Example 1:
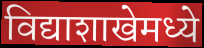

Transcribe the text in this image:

विद्याशाखेमध्ये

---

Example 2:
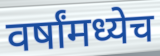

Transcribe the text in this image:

वर्षांमध्येच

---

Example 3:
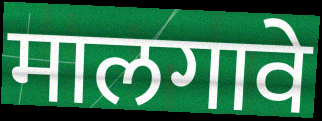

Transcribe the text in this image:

मालगावे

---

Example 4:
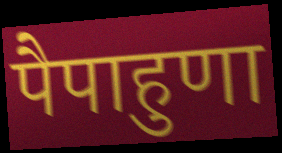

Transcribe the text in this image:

पैपाहुणा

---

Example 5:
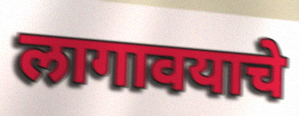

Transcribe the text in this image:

लागावयाचे